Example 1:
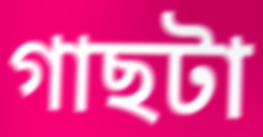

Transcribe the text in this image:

গাছটা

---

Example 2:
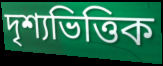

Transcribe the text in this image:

দৃশ্যভিত্তিক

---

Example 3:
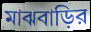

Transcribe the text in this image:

মাঝবাড়ির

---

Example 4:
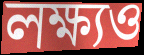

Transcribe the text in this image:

লক্ষ্যও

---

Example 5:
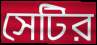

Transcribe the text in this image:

সেটির